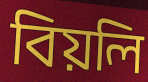
বিয়লি